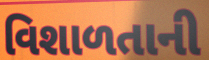
વિશાળતાની